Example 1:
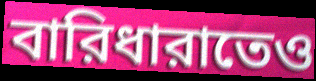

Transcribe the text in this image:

বারিধারাতেও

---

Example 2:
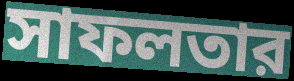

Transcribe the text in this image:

সাফলতার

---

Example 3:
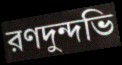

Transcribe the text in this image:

রণদুন্দভি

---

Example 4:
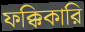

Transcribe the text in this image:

ফক্কিকারি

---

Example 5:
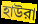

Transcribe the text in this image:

হাউরা